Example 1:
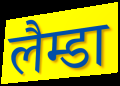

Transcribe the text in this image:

लैम्डा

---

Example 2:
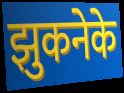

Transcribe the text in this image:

झुकनेके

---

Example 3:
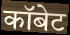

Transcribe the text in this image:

कॉबेट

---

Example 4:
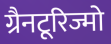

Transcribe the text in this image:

ग्रैनटूरिज्मो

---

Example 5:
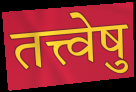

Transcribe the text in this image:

तत्त्वेषु